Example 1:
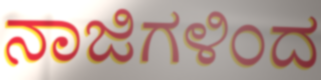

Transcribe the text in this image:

ನಾಜಿಗಳಿಂದ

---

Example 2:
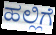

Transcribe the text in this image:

ಹಲ್ಲಿಗೆ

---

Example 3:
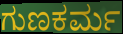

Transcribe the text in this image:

ಗುಣಕರ್ಮ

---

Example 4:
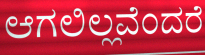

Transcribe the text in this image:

ಆಗಲಿಲ್ಲವೆಂದರೆ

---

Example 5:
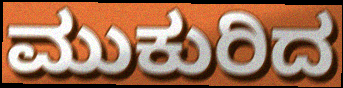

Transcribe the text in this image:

ಮುಕುರಿದ